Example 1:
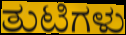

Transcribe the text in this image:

ತುಟಿಗಳು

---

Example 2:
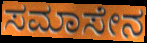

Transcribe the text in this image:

ಸಮಾಸೇನ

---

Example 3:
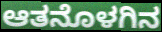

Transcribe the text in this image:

ಆತನೊಳಗಿನ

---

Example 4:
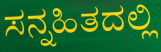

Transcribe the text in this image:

ಸನ್ನಹಿತದಲ್ಲಿ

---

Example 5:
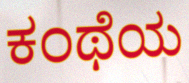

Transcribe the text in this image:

ಕಂಥೆಯ